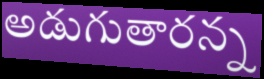
అడుగుతారన్న